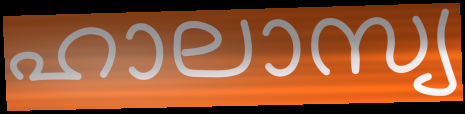
ഹാലാസ്യ